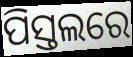
ପିସ୍ତଲରେ